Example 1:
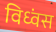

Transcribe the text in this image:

विध्वंस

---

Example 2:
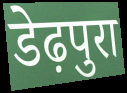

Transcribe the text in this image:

डेढ़पुरा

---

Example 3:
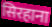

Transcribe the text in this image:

सिरहाना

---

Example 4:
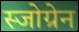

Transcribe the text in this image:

स्जोग्रेन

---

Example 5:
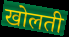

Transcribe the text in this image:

खोलती